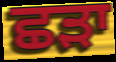
ਛਡ਼ਾ